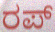
ರಪ್